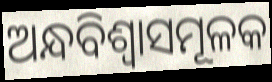
ଅନ୍ଧବିଶ୍ୱାସମୂଳକ